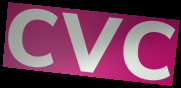
cvc